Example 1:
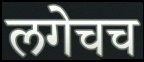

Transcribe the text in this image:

लगेचच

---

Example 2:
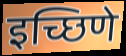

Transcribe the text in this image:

इच्छिणे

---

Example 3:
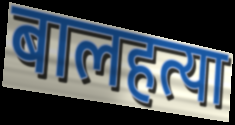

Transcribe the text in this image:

बालहत्या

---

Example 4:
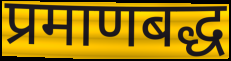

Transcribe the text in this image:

प्रमाणबद्ध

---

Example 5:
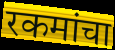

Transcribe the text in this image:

रकमांचा